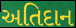
અતિદાન